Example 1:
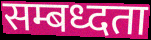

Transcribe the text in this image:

सम्बध्दता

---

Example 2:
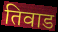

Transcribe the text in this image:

तिवाड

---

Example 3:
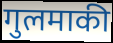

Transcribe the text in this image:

गुलमाकी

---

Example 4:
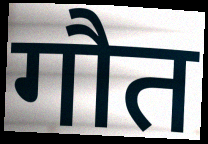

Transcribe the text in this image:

गौत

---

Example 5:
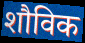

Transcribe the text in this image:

शौविक